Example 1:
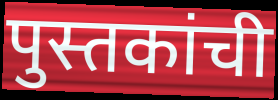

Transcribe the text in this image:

पुस्तकांची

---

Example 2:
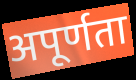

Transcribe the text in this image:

अपूर्णता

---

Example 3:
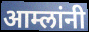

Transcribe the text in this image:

आम्लांनी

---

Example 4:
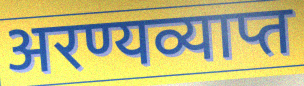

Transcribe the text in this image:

अरण्यव्याप्त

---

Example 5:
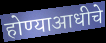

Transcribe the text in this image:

होण्याआधीचे